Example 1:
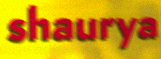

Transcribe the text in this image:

shaurya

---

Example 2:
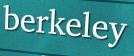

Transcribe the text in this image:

berkeley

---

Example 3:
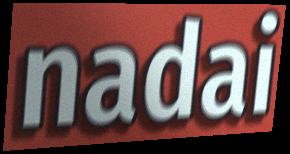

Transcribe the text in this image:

nadai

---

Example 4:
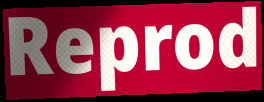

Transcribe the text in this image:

Reprod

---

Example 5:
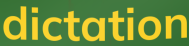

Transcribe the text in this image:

dictation